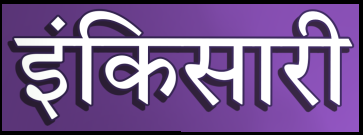
इंकिसारी